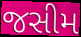
જસીમ